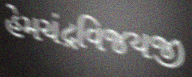
હેમચંદ્રવિજયજી